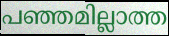
പഞ്ഞമില്ലാത്ത